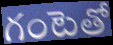
గంటెతో